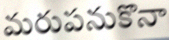
మరుపనుకొనా